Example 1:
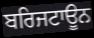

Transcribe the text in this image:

ਬਰਿਜਟਾਊਨ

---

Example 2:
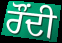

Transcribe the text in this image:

ਰੌਂਦੀ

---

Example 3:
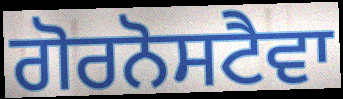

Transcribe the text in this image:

ਗੋਰਨੋਸਟੈਵਾ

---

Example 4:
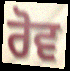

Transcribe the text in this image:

ਰੋਵ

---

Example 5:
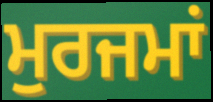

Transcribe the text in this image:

ਮੁਰਜਮਾਂ